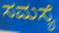
ಸಮಸ್ಯೆ